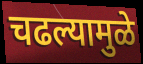
चढल्यामुळे